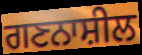
ਗਣਨਾਸ਼ੀਲ